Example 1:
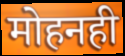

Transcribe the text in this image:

मोहनही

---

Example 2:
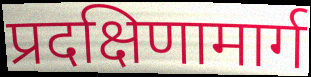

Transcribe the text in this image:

प्रदक्षिणामार्ग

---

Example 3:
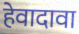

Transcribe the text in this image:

हेवादावा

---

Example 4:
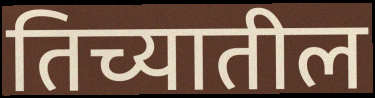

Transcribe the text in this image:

तिच्यातील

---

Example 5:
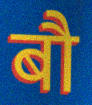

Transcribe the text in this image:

बौ